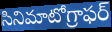
సినిమాటోగ్రాఫర్